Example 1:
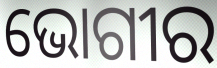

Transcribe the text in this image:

ଭୋଗୀର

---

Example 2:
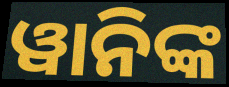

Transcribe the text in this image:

ୱାନିଙ୍କ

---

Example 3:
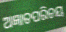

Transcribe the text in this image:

ଅଜ୍ଞାତପରିଚୟ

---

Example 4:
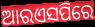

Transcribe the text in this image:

ଆରଏସପିରେ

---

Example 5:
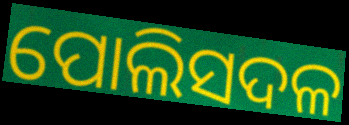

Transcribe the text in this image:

ପୋଲିସଦଳ